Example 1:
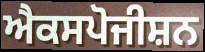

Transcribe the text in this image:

ਐਕਸਪੋਜੀਸ਼ਨ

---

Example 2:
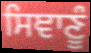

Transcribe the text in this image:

ਸਿਞਾਣੂੰ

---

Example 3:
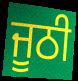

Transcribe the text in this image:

ਜੂਠੀ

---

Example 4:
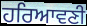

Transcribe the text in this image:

ਹਰਿਆਵਣੀ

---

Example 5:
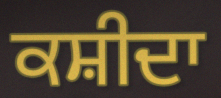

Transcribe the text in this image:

ਕਸ਼ੀਦਾ